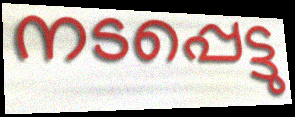
നടപ്പെട്ടു